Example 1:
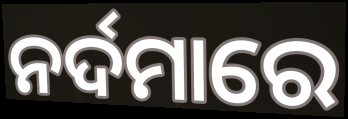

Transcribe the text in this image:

ନର୍ଦମାରେ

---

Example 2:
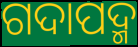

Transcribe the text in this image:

ଗଦାପଦ୍ମ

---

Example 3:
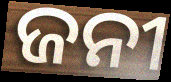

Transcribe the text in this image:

ଜନୀ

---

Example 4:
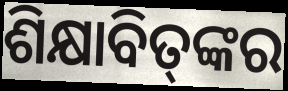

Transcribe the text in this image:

ଶିକ୍ଷାବିତ୍‌ଙ୍କର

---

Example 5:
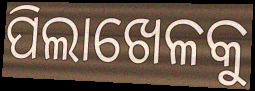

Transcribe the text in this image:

ପିଲାଖେଳକୁ